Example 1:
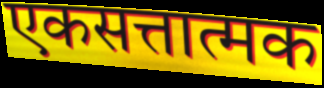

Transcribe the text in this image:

एकसत्तात्मक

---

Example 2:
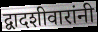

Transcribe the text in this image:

द्वादशीवारांनी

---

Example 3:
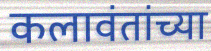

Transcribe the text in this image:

कलावंतांच्या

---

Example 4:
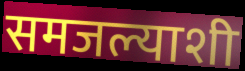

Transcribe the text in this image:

समजल्याशी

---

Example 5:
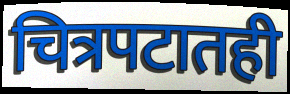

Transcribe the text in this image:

चित्रपटातही